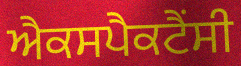
ਐਕਸਪੈਕਟੈਂਸੀ